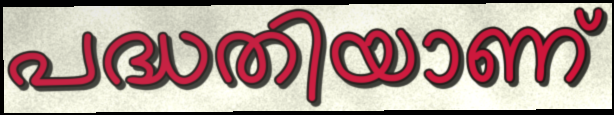
പദ്ധതിയാണ്